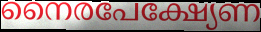
നൈരപേക്ഷ്യേണ